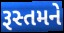
રૂસ્તમને